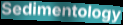
Sedimentology